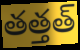
తత్తత్